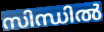
സിന്ധിൽ